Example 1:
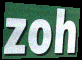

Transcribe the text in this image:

zoh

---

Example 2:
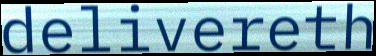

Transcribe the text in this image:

delivereth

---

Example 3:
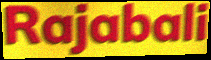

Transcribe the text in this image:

Rajabali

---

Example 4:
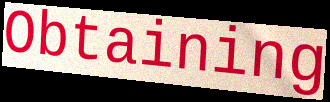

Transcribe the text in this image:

Obtaining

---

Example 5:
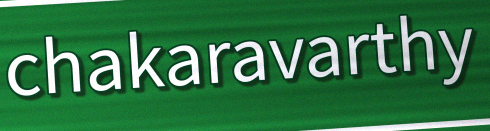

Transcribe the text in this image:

chakaravarthy